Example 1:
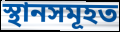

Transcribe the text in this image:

স্থানসমূহত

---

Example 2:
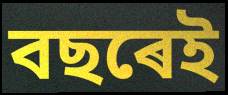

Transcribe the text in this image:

বছৰেই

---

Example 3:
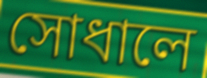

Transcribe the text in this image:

সোধালে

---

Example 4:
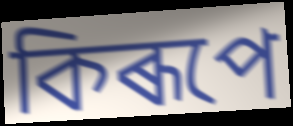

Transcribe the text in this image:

কিৰূপে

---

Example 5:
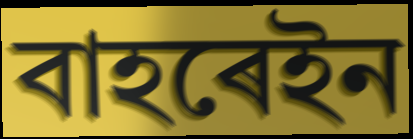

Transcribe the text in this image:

বাহৰেইন